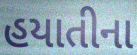
હયાતીના